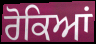
ਰੋਕਿਆਂ